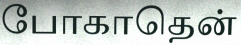
போகாதென்